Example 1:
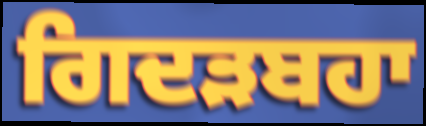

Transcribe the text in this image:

ਗਿਦੜਬਹਾ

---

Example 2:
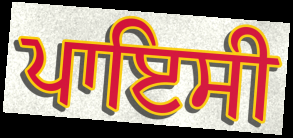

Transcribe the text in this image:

ਪਾਇਸੀ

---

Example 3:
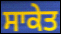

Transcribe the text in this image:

ਸਾਕੇਤ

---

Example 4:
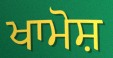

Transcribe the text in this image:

ਖਾਮੋਸ਼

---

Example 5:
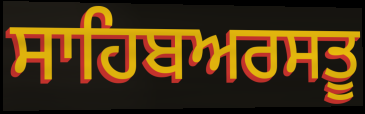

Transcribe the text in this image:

ਸਾਹਿਬਅਰਸਤੂ